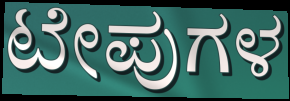
ಟೇಪುಗಳ